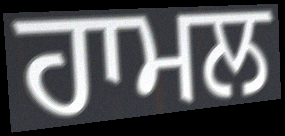
ਹਾਮਲ